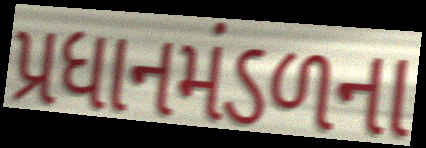
પ્રધાનમંડળના